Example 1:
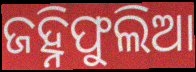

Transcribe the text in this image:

ଜହ୍ନିଫୁଲିଆ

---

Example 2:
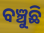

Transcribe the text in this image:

ବଞ୍ଚୁଛି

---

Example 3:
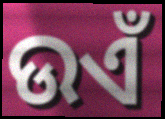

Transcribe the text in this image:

ଉଏଁ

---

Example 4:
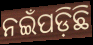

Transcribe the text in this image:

ନଇଁପଡ଼ିଛି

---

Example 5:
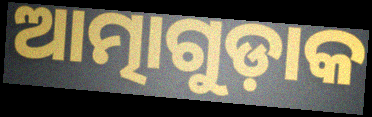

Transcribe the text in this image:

ଆତ୍ମାଗୁଡ଼ାକ